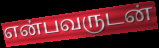
என்பவருடன்